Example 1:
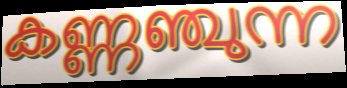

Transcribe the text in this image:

കണ്ണഞ്ചുന്ന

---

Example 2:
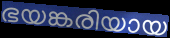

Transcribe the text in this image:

ഭയങ്കരിയായ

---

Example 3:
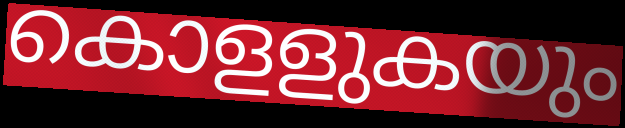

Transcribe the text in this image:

കൊളളുകയും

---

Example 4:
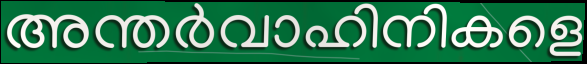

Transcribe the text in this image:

അന്തർവാഹിനികളെ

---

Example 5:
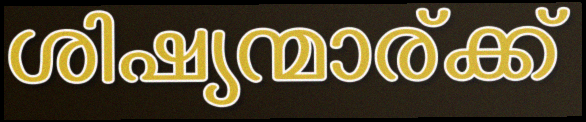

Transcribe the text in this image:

ശിഷ്യന്മാര്ക്ക്